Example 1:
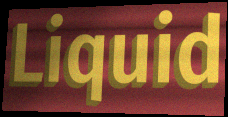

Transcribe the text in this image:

Liquid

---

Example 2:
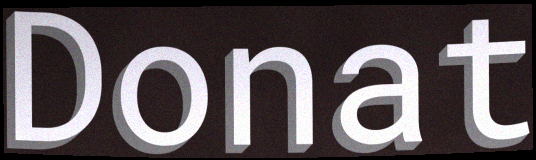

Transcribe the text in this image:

Donat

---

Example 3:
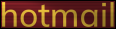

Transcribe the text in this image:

hotmail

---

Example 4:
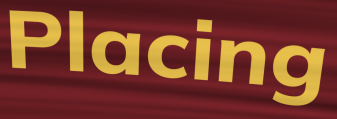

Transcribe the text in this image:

Placing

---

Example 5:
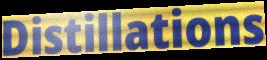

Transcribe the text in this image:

Distillations